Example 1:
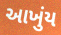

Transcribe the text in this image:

આખુંય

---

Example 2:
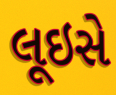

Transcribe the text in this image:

લૂઇસે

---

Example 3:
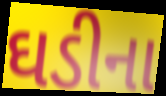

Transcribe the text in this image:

ઘડીના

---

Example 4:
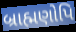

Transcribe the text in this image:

બ્રાહ્મણોપિ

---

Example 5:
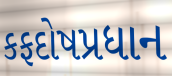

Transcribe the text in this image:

કફદોષપ્રધાન